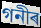
গনীৰ